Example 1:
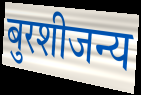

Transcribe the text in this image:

बुरशीजन्य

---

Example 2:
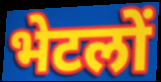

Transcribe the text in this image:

भेटलों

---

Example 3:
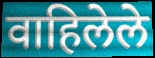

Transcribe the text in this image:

वाहिलेले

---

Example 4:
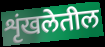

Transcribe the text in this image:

शृंखलेतील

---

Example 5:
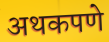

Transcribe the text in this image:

अथकपणे